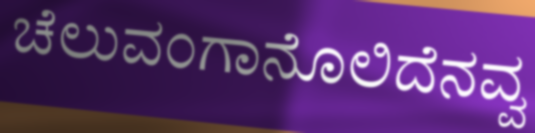
ಚೆಲುವಂಗಾನೊಲಿದೆನವ್ವ